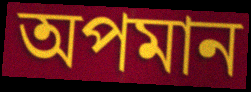
অপমান